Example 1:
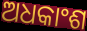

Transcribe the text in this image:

ଅଧକାଂଶ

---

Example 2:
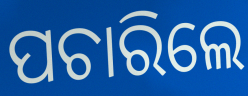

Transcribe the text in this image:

ପଚାରିଲେ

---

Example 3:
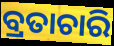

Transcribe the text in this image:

ବ୍ରତାଚାରି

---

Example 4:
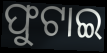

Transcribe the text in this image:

ଫୁଟାଇ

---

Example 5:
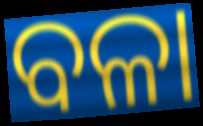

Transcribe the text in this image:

ବଳା